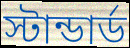
স্টান্ডার্ড